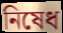
নিষেধ